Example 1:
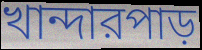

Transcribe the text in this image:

খান্দারপাড়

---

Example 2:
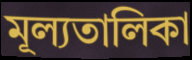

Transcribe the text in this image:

মূল্যতালিকা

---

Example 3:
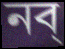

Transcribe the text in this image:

নব্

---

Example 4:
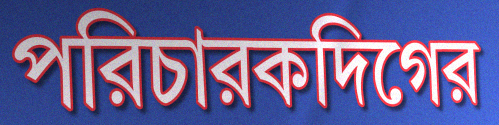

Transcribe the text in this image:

পরিচারকদিগের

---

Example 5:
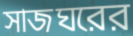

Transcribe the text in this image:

সাজঘরের